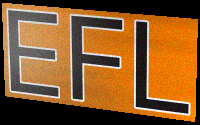
EFL